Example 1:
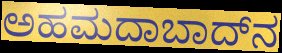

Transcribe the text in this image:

ಅಹಮದಾಬಾದ್‌ನ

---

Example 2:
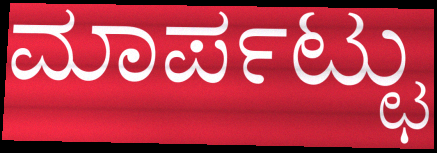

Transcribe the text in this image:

ಮಾರ್ಪಟ್ಟು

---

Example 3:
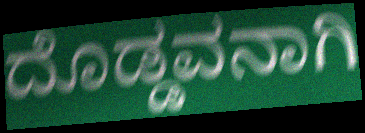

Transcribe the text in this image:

ದೊಡ್ಡವನಾಗಿ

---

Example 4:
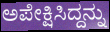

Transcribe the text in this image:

ಅಪೇಕ್ಷಿಸಿದ್ದನ್ನು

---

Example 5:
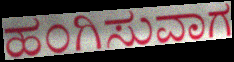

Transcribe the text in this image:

ಹಂಗಿಸುವಾಗ